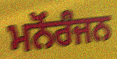
ਮਨੋਂਰੰਜਨ